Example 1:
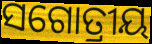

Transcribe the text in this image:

ସଗୋତ୍ରୀୟ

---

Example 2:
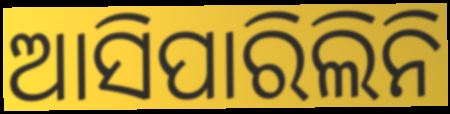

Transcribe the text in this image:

ଆସିପାରିଲିନି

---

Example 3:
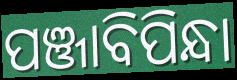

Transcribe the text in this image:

ପଞ୍ଜାବିପିନ୍ଧା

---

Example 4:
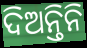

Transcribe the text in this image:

ଦିଅନ୍ତିନି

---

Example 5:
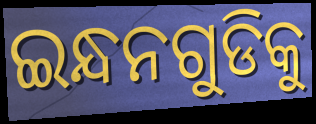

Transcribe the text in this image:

ଇନ୍ଧନଗୁଡିକୁ